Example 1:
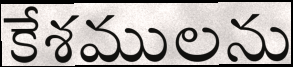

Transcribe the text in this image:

కేశములను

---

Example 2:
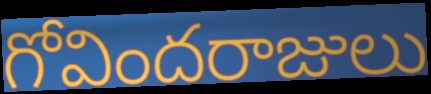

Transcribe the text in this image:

గోవిందరాజులు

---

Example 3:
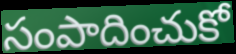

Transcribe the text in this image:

సంపాదించుకో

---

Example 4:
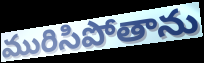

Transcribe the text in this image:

మురిసిపోతాను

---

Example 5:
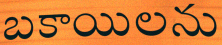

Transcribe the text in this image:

బకాయిలను